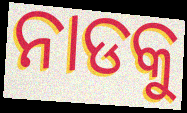
ନାଡକୁ